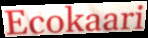
Ecokaari